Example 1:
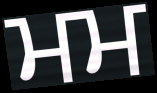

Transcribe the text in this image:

ਮਮ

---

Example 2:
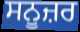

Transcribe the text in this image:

ਸਨੂਜ਼ਰ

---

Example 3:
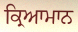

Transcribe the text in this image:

ਕ੍ਰਿਆਮਾਨ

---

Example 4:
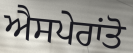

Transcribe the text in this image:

ਐਸਪੇਰਾਂਤੋ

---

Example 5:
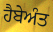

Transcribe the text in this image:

ਹੈਬੇਅੰਤ